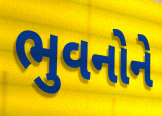
ભુવનોને